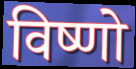
विष्णो